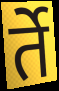
र्ते